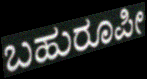
ಬಹುರೂಪೀ